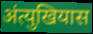
अंत्युखियास